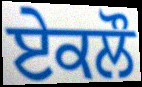
ਏਕਲੌ